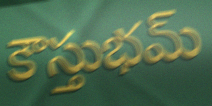
కౌస్తుభమ్